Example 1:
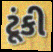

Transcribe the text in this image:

ટૂંકી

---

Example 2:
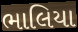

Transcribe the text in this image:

ભાલિયા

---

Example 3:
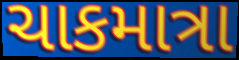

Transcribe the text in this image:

ચાકમાત્રા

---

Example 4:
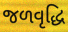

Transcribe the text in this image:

જળવૃદ્ધિ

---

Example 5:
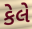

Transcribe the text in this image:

કેલે